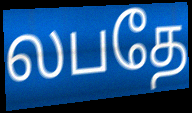
லபதே